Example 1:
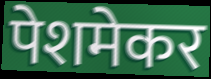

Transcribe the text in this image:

पेशमेकर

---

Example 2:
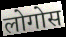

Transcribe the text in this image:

लोगोस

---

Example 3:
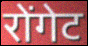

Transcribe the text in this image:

रोंगेट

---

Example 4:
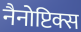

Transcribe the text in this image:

नैनोप्टिक्स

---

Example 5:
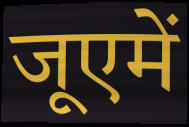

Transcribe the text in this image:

जूएमें